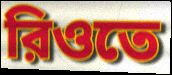
রিওতে